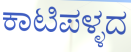
ಕಾಟಿಪಳ್ಳದ